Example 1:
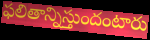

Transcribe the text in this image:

ఫలితాన్నిస్తుందంటారు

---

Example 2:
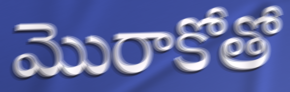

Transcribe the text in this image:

మొరాకోతో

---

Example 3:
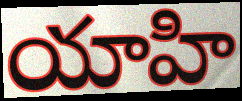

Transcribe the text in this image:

యాహి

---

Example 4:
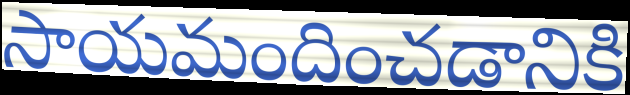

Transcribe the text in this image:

సాయమందించడానికి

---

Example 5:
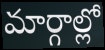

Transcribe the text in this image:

మార్గాల్లో